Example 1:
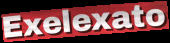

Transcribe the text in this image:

Exelexato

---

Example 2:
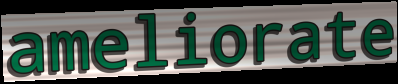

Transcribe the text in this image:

ameliorate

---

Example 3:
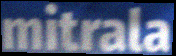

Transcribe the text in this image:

mitrala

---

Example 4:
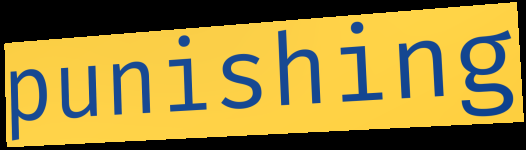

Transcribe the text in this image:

punishing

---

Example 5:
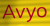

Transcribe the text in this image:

Avyo